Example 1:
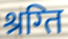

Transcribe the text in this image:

श्रग्ति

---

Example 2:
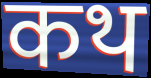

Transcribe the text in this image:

कथ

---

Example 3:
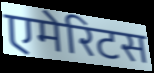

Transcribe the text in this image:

एमेरिटस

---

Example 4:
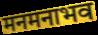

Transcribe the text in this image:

मनमनाभव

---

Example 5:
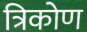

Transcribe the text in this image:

त्रिकोण